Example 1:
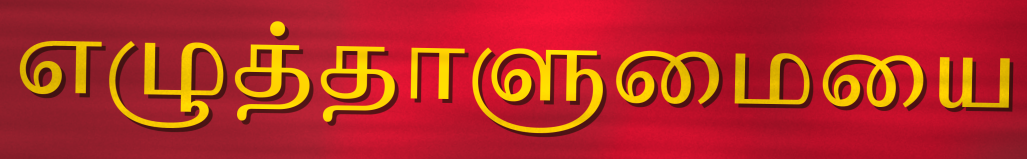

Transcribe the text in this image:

எழுத்தாளுமையை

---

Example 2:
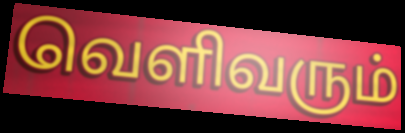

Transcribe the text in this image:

வெளிவரும்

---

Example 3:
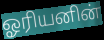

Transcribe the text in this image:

ஓரியனின்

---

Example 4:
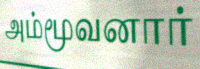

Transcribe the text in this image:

அம்மூவனார்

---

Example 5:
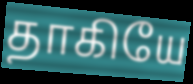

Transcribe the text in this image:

தாகியே